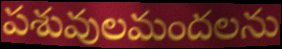
పశువులమందలను